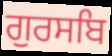
ਗੁਰਸਬਿ